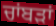
ਚਾਂਬੜਾਂ